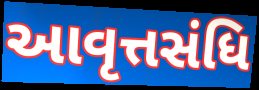
આવૃત્તસંધિ